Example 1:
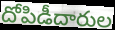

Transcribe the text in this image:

దోపిడీదారుల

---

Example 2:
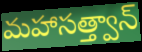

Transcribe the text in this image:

మహాసత్త్వాన్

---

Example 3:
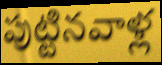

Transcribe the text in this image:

పుట్టినవాళ్ల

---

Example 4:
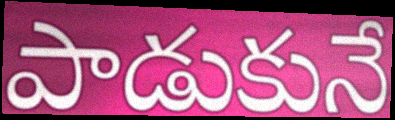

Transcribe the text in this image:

పాడుకునే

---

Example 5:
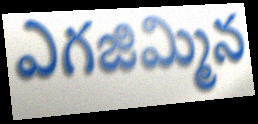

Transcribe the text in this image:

ఎగజిమ్మిన